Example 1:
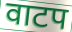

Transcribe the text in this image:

वाटप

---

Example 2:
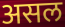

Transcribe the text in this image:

असल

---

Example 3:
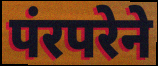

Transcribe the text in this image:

पंरपरेने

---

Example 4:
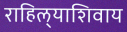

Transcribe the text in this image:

राहिल्याशिवाय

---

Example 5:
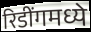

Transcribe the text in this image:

रिडींगमध्ये